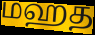
மஹத